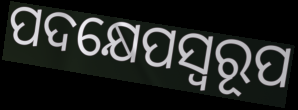
ପଦକ୍ଷେପସ୍ଵରୂପ